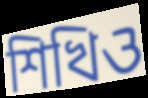
শিখিও